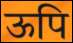
ऊपि